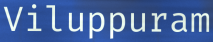
Viluppuram